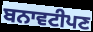
ਬਨਾਵਟੀਪਣ